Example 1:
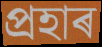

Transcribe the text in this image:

প্ৰহাৰ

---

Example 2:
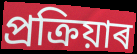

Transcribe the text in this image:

প্ৰক্ৰিয়াৰ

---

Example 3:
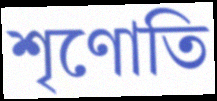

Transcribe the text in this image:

শৃণোতি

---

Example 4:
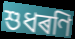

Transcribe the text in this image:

শুধৰণি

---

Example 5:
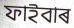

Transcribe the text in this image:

ফাইবাৰ